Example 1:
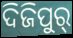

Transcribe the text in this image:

ଦିଜିପୁର୍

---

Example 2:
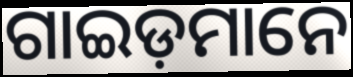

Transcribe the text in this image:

ଗାଇଡ଼ମାନେ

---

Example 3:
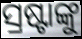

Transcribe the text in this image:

ସ୍ରଷ୍ଟାଙ୍କୁ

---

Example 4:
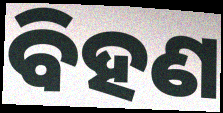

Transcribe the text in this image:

ବିହଣ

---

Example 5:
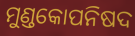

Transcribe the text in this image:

ମୁଣ୍ଡକୋପନିଷଦ